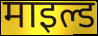
माइल्ड